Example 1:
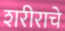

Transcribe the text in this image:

शरीराचे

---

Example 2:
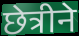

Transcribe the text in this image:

छेत्रीने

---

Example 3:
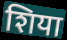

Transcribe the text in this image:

शिया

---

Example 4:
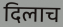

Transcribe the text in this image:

दिलाच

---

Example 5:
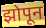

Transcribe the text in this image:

झोपून